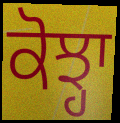
ਕੋਝ੍ਹਾ